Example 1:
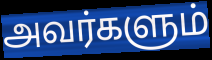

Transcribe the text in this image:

அவர்களும்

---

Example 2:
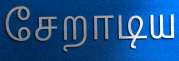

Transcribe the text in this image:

சேறாடிய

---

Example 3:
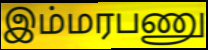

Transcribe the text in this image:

இம்மரபணு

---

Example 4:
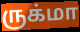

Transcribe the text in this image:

ருக்மா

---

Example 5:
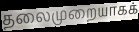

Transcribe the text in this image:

தலைமுறையாகக்